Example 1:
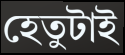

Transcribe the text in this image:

হেতুটাই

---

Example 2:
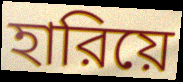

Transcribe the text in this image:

হারিয়ে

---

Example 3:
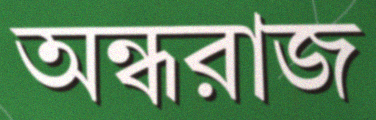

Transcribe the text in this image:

অন্ধরাজ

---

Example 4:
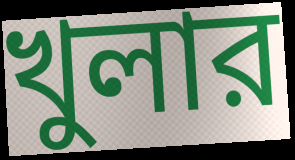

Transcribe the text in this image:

খুলার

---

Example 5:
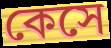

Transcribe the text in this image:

কেসে